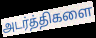
அடர்த்திகளை